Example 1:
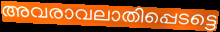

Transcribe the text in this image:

അവരാവലാതിപ്പെടട്ടെ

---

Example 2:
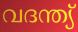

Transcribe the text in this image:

വദന്ത്യ്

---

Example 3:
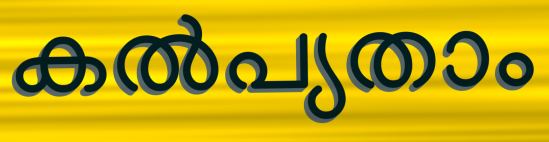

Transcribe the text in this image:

കൽപ്യതാം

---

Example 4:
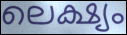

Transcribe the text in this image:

ലെക്ഷ്യം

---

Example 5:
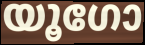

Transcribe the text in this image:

യൂഗോ